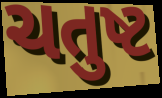
ચતુષ્ટ